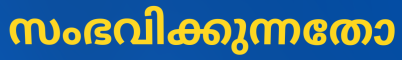
സംഭവിക്കുന്നതോ